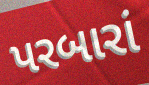
પરબારાં